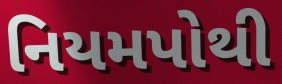
નિયમપોથી